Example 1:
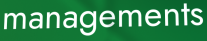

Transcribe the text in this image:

managements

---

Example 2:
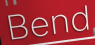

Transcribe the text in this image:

Bend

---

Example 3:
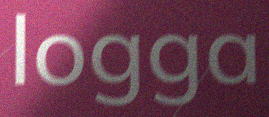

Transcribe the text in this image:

logga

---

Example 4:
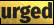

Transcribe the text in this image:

urged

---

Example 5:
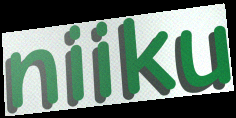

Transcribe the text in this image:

niiku